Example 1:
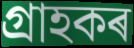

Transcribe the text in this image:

গ্ৰাহকৰ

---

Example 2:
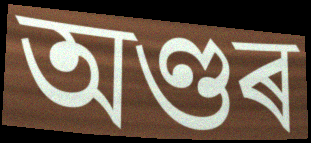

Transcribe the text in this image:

অণ্ডৰ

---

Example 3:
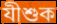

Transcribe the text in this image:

যীশুক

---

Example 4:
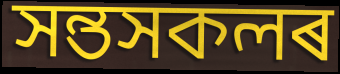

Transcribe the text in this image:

সন্তসকলৰ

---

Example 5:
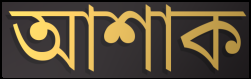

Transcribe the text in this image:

আশাক